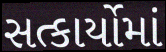
સત્કાર્યોમાં